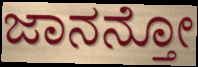
ಜಾನನ್ತೋ